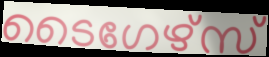
ടൈഗേഴ്സ്